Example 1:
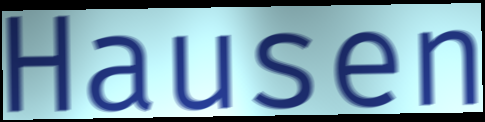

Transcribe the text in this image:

Hausen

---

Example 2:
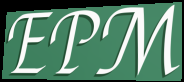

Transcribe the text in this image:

EPM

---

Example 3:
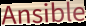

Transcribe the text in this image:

Ansible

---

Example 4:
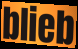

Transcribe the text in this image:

blieb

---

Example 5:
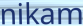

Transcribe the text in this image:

nikam